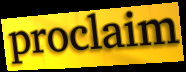
proclaim